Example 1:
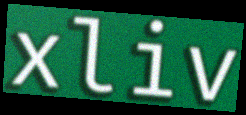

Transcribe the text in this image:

xliv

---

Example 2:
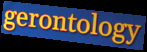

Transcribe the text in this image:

gerontology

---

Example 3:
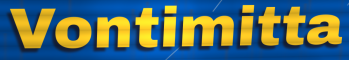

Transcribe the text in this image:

Vontimitta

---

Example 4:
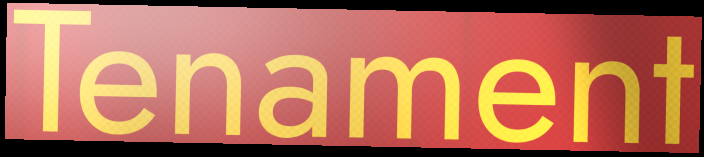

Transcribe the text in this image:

Tenament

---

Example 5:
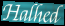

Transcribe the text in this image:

Halhed